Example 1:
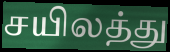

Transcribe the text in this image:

சயிலத்து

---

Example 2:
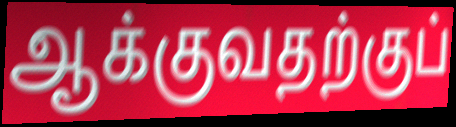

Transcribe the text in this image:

ஆக்குவதற்குப்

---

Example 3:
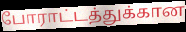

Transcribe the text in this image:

போராட்டத்துக்கான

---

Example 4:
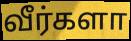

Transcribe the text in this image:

வீர்களா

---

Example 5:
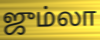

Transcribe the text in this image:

ஜும்லா